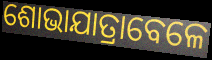
ଶୋଭାଯାତ୍ରାବେଳେ